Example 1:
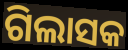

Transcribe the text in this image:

ଗିଲାସକ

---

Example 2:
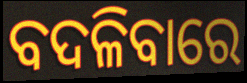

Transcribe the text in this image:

ବଦଳିବାରେ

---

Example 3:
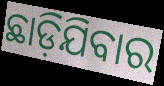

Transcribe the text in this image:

ଛାଡ଼ିଯିବାର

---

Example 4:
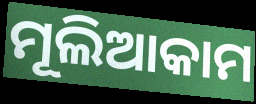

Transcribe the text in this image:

ମୂଲିଆକାମ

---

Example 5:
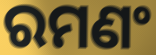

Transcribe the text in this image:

ରମଣଂ